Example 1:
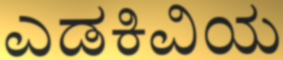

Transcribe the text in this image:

ಎಡಕಿವಿಯ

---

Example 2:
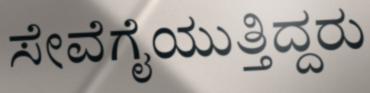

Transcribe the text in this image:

ಸೇವೆಗೈಯುತ್ತಿದ್ದರು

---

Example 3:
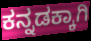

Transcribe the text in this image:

ಕನ್ನಡಕ್ಕಾಗಿ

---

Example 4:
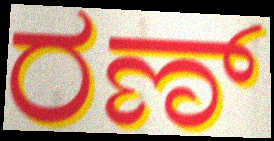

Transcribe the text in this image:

ರಣ್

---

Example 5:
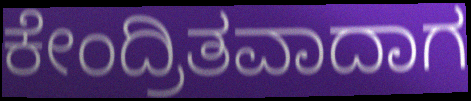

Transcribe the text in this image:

ಕೇಂದ್ರಿತವಾದಾಗ